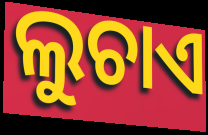
ଲୁଚାଏ